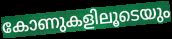
കോണുകളിലൂടെയും